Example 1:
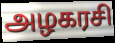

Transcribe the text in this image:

அழகரசி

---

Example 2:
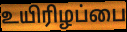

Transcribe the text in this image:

உயிரிழப்பை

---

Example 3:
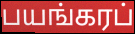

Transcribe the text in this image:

பயங்கரப்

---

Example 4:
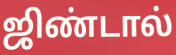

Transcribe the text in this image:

ஜிண்டால்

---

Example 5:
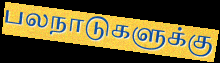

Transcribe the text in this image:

பலநாடுகளுக்கு